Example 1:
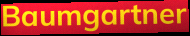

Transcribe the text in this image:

Baumgartner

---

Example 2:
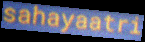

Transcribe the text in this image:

sahayaatri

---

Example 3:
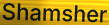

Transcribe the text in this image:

Shamsher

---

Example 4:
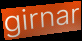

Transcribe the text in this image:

girnar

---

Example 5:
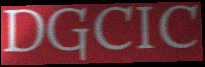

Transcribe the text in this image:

DGCIC